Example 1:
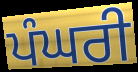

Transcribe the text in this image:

ਪੰਘਰੀ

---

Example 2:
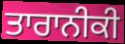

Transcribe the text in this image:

ਤਾਰਾਨੀਕੀ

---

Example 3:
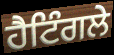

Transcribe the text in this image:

ਹੈਟਿੰਗਲੇ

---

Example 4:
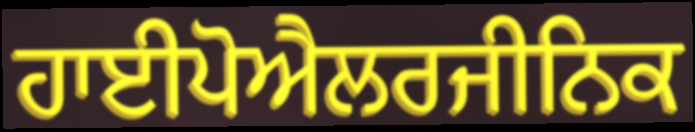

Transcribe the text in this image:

ਹਾਈਪੋਐਲਰਜੀਨਿਕ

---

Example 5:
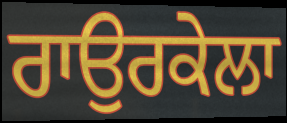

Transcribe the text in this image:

ਰਾਉਰਕੇਲਾ